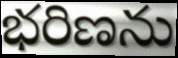
భరిణను